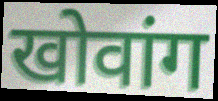
खोवांग